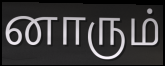
னாரும்